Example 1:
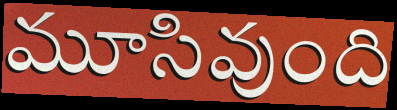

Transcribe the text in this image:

మూసివుంది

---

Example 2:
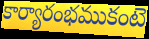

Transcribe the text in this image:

కార్యారంభముకంటె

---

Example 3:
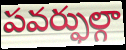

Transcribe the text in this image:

పవర్ఫుల్గా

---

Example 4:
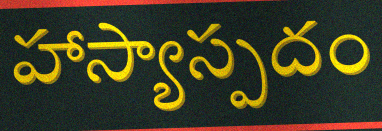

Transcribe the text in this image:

హాస్యాస్పదం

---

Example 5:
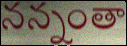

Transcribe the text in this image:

నన్నంతా